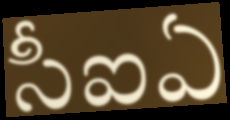
సీఐఏ